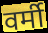
वर्मी